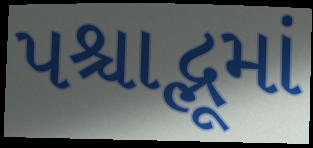
પશ્ચાદ્ભૂમાં